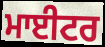
ਮਾਈਟਰ